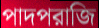
পাদপরাজি